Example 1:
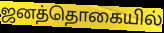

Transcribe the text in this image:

ஜனத்தொகையில்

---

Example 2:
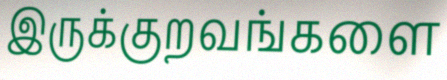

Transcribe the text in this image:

இருக்குறவங்களை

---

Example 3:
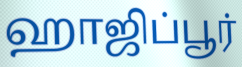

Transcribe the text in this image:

ஹாஜிப்பூர்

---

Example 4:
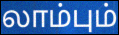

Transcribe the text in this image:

லாம்பும்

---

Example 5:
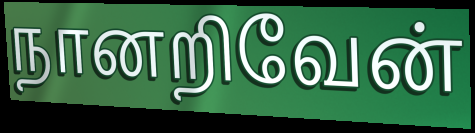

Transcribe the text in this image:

நானறிவேன்